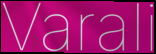
Varali